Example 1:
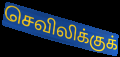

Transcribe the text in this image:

செவிலிக்குக்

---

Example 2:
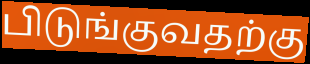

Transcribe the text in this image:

பிடுங்குவதற்கு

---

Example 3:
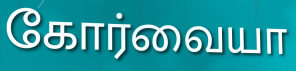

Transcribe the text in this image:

கோர்வையா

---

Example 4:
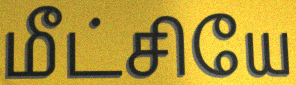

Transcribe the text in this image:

மீட்சியே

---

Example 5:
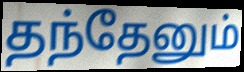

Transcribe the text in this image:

தந்தேனும்